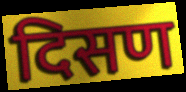
दिसण